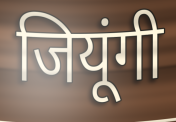
जियूंगी